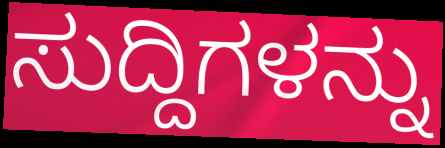
ಸುದ್ದಿಗಳನ್ನು